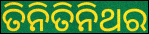
ତିନିତିନିଥର